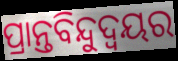
ପ୍ରାନ୍ତବିନ୍ଦୁଦ୍ଵୟର